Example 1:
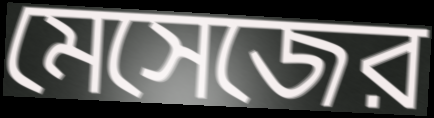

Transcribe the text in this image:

মেসেজের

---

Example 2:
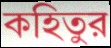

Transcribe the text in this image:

কহিতুর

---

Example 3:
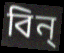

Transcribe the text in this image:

বিন্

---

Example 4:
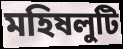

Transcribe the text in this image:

মহিষলুটি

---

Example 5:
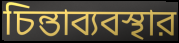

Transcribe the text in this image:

চিন্তাব্যবস্থার